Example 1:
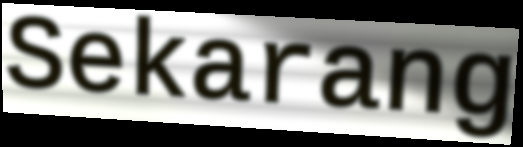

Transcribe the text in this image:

Sekarang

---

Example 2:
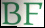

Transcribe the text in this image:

BF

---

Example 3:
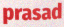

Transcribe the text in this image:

prasad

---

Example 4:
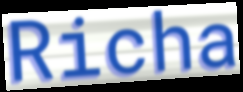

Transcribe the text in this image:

Richa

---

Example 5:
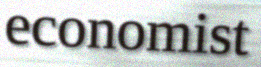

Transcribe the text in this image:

economist